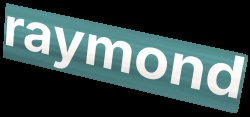
raymond